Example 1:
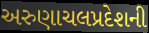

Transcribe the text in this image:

અરુણાચલપ્રદેશની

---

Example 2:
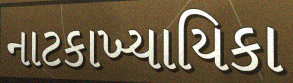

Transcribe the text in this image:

નાટકાખ્યાયિકા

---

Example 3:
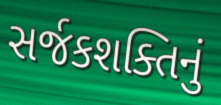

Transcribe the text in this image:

સર્જકશક્તિનું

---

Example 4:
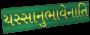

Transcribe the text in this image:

યસ્સાનુભાવેનાતિ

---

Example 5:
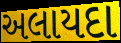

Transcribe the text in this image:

અલાયદા